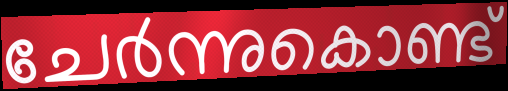
ചേർന്നുകൊണ്ട്